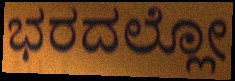
ಭರದಲ್ಲೋ